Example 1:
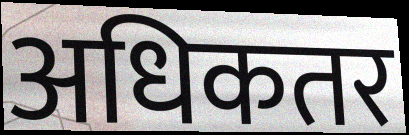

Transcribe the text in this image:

अधिकतर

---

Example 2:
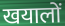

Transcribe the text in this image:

खयालों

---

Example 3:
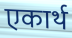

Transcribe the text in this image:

एकार्थ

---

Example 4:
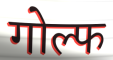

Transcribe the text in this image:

गोल्फ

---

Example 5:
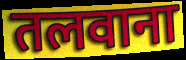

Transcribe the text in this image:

तलवाना